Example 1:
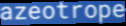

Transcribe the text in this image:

azeotrope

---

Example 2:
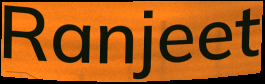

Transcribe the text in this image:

Ranjeet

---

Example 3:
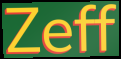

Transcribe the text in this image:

Zeff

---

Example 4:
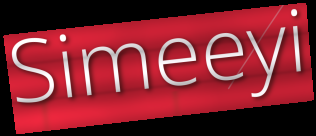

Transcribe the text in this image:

Simeeyi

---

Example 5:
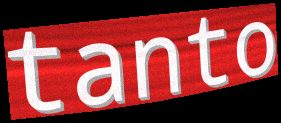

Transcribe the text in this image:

tanto